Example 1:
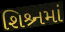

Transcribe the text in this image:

શિશ્ર્નમાં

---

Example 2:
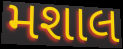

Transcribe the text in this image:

મશાલ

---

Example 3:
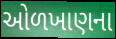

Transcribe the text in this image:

ઓળખાણના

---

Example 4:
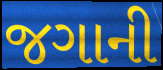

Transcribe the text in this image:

જગાની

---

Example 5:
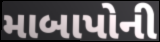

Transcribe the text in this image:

માબાપોની